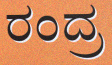
ರಂದ್ರ